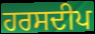
ਹਰਸਦੀਪ